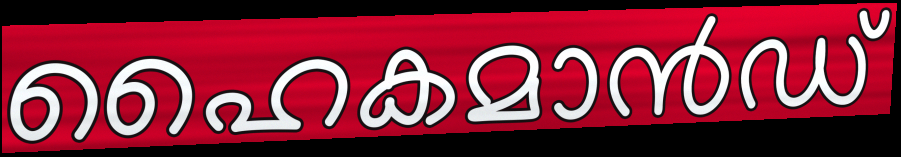
ഹൈകമാൻഡ്